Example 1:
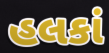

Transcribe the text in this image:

હલકાં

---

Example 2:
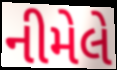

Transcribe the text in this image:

નીમેલે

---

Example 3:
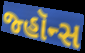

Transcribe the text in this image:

જ્હૉન્સ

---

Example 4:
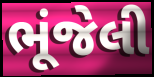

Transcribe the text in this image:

ભૂંજેલી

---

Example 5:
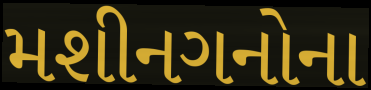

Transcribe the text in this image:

મશીનગનોના